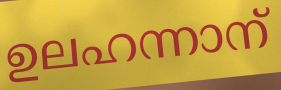
ഉലഹന്നാന്